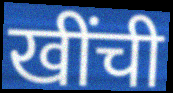
खींची